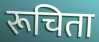
रूचिता